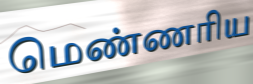
மெண்ணரிய